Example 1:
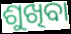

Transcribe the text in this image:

ଶୁଖିବା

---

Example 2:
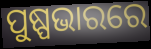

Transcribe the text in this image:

ପୁଷ୍ପଭାରରେ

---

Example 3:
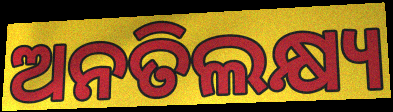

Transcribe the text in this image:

ଅନତିଲକ୍ଷ୍ୟ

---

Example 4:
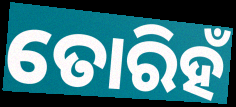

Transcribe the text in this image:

ତୋରିହଁ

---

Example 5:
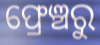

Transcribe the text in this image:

ଫ୍ରେଞ୍ଚରୁ